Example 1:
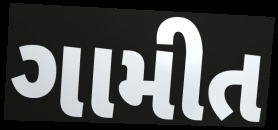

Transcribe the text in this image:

ગામીત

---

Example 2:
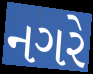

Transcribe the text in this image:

નગરે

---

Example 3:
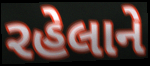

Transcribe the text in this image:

રહેલાને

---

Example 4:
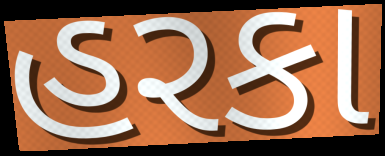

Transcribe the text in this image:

હરકા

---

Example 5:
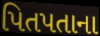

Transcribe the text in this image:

પિતપતાના